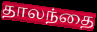
தாலந்தை